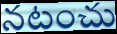
నటంచు